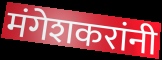
मंगेशकरांनी